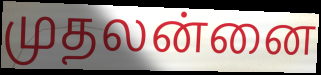
முதலன்னை